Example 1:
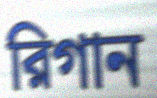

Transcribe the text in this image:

রিগান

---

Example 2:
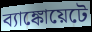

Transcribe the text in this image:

ব্যাঙ্কোয়েটে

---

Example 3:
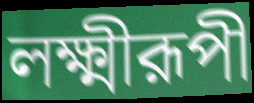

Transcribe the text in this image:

লক্ষ্মীরূপী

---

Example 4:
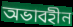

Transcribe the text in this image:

অভাবহীন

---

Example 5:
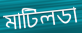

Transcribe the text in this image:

মাটিলডা